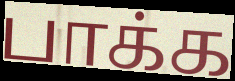
பாக்க